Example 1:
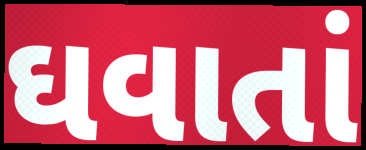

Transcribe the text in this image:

ઘવાતાં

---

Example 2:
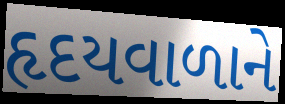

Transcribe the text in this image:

હૃદયવાળાને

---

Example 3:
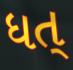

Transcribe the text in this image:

ધત્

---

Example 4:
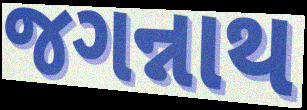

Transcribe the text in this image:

જગન્નાથ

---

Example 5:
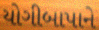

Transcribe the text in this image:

યોગીબાપાને